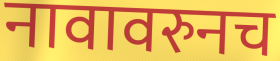
नावावरुनच